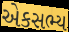
એકસભ્ય